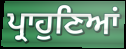
ਪ੍ਰਾਹੁਣਿਆਂ